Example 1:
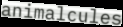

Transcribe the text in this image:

animalcules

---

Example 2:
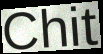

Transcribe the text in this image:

Chit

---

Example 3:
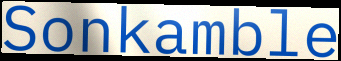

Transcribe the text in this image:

Sonkamble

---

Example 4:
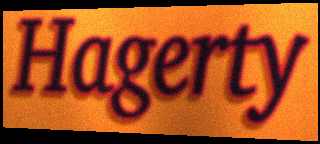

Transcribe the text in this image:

Hagerty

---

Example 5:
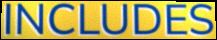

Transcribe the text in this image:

INCLUDES